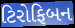
ટિરોફિબન